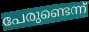
പേരുണ്ടെന്ന്